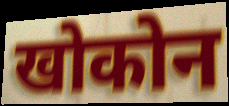
खोकोन